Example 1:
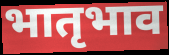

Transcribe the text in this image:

भातृभाव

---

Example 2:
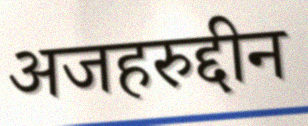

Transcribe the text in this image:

अजहरुद्दीन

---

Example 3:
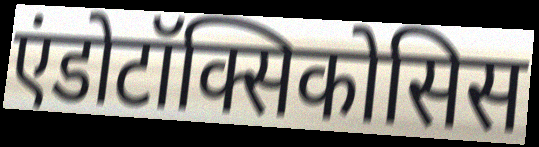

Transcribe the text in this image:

एंडोटॉक्सिकोसिस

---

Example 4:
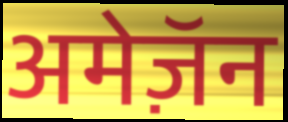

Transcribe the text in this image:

अमेज़ॅन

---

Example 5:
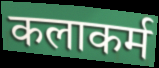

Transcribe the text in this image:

कलाकर्म